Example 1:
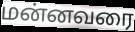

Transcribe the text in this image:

மன்னவரை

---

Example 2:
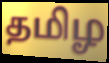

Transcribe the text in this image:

தமிழ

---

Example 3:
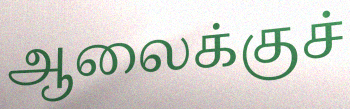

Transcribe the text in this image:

ஆலைக்குச்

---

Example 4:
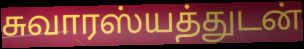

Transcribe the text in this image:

சுவாரஸ்யத்துடன்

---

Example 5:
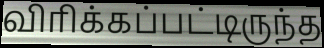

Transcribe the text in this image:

விரிக்கப்பட்டிருந்த